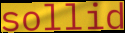
sollid